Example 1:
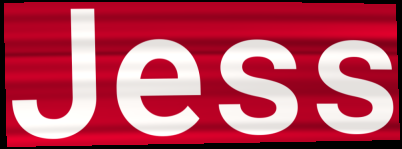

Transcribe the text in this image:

Jess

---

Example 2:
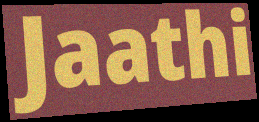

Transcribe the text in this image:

Jaathi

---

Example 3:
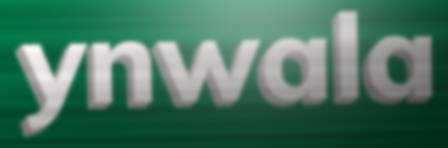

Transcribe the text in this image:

ynwala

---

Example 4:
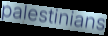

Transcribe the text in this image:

palestinians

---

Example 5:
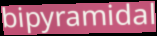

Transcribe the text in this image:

bipyramidal